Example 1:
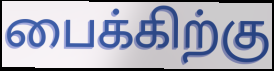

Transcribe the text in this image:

பைக்கிற்கு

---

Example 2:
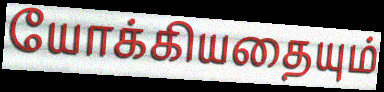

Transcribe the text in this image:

யோக்கியதையும்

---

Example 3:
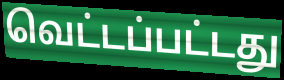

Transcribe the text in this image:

வெட்டப்பட்டது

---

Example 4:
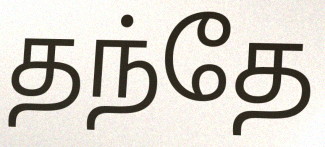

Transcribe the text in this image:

தந்தே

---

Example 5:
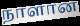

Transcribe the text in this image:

நாளான